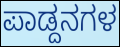
ಪಾಡ್ದನಗಳ